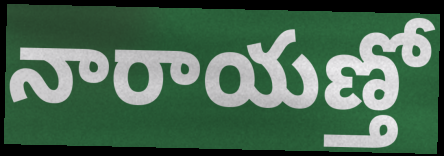
నారాయణ్తో